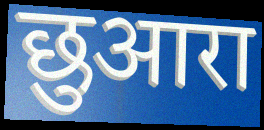
छुआरा